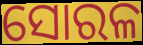
ସୋରଳ